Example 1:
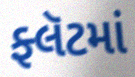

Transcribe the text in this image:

ફ્લૅટમાં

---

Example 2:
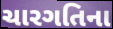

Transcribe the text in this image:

ચારગતિના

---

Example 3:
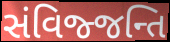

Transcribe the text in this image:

સંવિજ્જન્તિ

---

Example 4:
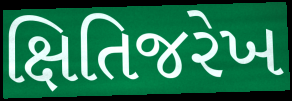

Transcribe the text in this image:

ક્ષિતિજરેખ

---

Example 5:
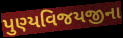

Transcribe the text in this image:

પુણ્યવિજયજીના